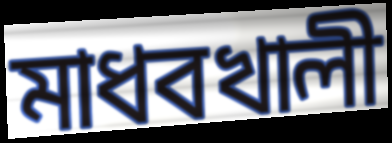
মাধবখালী